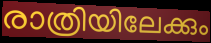
രാത്രിയിലേക്കും